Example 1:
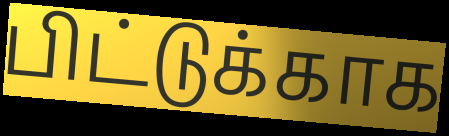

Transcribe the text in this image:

பிட்டுக்காக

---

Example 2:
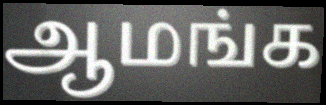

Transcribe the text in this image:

ஆமங்க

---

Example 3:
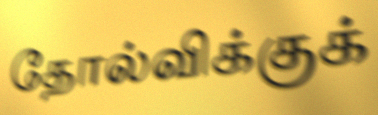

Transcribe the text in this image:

தோல்விக்குக்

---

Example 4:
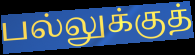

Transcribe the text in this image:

பல்லுக்குத்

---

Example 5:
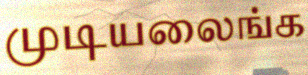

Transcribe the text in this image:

முடியலைங்க